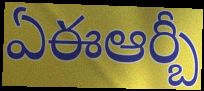
ఏఈఆర్బీ